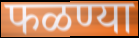
फळण्या